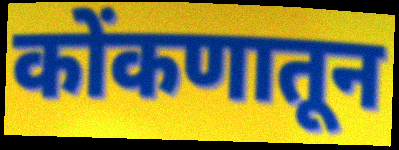
कोंकणातून